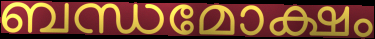
ബന്ധമോക്ഷം